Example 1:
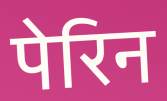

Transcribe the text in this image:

पेरिन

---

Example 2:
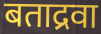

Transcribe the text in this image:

बताद्रवा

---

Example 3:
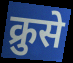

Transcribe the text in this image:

क्रुसे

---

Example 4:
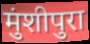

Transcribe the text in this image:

मुंशीपुरा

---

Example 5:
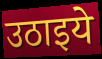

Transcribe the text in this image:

उठाइये